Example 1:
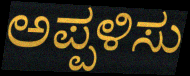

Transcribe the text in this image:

ಅಪ್ಪಳಿಸು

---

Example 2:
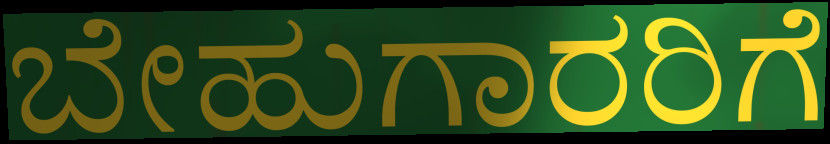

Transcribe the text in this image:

ಬೇಹುಗಾರರಿಗೆ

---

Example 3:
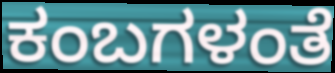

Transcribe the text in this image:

ಕಂಬಗಳಂತೆ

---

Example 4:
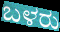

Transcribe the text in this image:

ಬಳರು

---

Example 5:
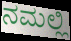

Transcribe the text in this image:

ನಮಲ್ಲಿ